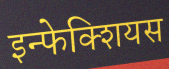
इन्फेक्शियस